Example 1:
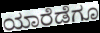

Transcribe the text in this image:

ಯಾರೆಡೆಗೂ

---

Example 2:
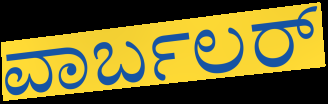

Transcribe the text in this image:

ವಾರ್ಬಲರ್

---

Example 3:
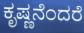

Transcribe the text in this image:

ಕೃಷ್ಣನೆಂದರೆ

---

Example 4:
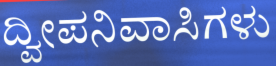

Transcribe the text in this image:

ದ್ವೀಪನಿವಾಸಿಗಳು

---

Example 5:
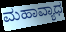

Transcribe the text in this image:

ಮಹಾವ್ಯಾಧ